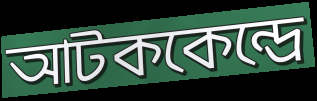
আটককেন্দ্রে